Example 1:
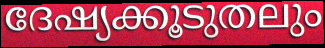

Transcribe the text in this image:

ദേഷ്യക്കൂടുതലും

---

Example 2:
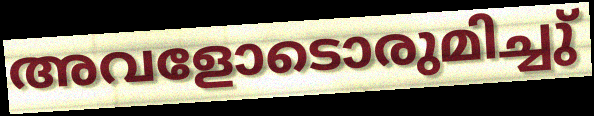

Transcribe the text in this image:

അവളോടൊരുമിച്ചു്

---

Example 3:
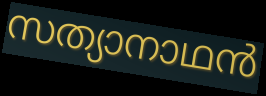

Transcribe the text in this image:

സത്യാനാഥൻ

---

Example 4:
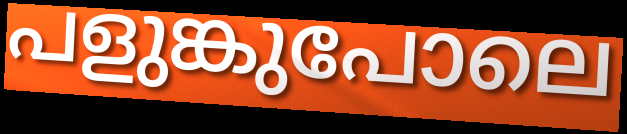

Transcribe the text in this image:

പളുങ്കുപോലെ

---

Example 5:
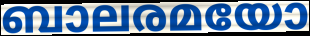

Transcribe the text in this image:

ബാലരമയോ